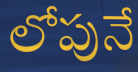
లోపునే